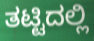
ತಟ್ಟಿದಲ್ಲಿ